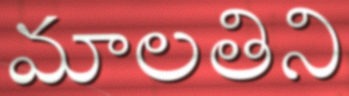
మాలతిని